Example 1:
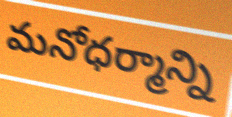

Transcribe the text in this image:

మనోధర్మాన్ని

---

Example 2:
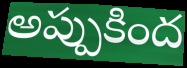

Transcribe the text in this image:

అప్పుకింద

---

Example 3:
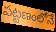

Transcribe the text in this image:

పట్టణంలోనే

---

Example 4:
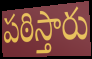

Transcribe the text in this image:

పఠిస్తారు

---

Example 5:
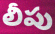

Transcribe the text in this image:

లీపు